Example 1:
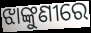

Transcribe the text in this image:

ଝାଙ୍କୁଣୀରେ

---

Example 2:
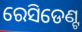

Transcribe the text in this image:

ରେସିଡେଣ୍ଟ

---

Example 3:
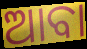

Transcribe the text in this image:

ଆବା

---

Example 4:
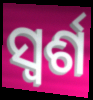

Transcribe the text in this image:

ସ୍ୱର୍ଶ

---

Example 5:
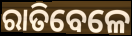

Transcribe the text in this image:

ରାତିବେଳେ